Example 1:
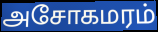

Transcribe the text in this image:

அசோகமரம்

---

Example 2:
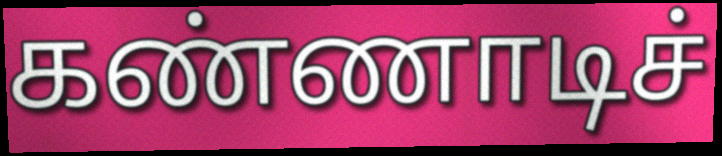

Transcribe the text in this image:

கண்ணாடிச்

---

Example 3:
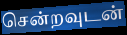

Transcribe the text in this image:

சென்றவுடன்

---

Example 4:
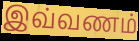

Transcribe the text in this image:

இவ்வணம்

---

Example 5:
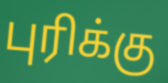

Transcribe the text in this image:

புரிக்கு